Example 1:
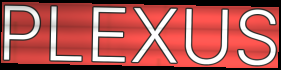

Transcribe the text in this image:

PLEXUS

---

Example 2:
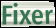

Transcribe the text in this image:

Fixer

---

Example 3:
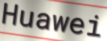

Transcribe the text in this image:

Huawei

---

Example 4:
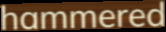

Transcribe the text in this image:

hammered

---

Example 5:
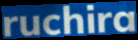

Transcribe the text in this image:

ruchira